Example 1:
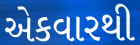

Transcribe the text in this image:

એકવારથી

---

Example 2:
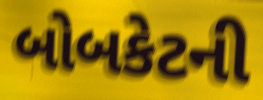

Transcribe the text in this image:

બોબકેટની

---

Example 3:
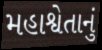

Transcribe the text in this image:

મહાશ્વેતાનું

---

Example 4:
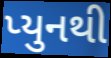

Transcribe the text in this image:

પ્યુનથી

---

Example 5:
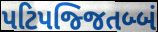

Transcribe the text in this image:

પટિપજ્જિતબ્બં